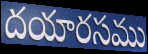
దయారసము